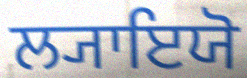
ਲ੍ਯਾਇਯੋ